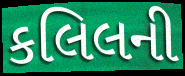
કલિલની